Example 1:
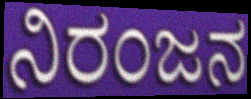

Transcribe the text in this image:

ನಿರಂಜನ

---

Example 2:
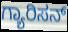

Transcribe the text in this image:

ಗ್ಯಾರಿಸನ್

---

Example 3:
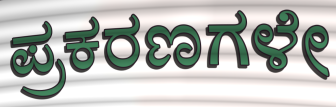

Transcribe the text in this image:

ಪ್ರಕರಣಗಳೇ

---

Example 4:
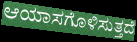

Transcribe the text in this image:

ಆಯಾಸಗೊಳಿಸುತ್ತದೆ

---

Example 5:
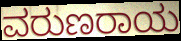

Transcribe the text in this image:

ವರುಣರಾಯ